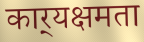
कार्यक्षमता